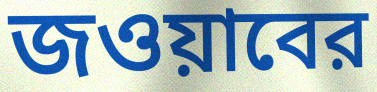
জওয়াবের